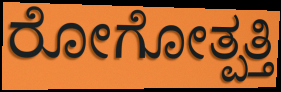
ರೋಗೋತ್ಪತ್ತಿ